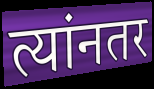
त्यांनतर